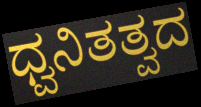
ಧ್ವನಿತತ್ವದ